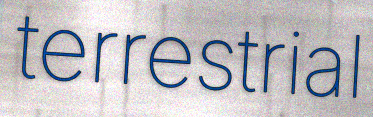
terrestrial